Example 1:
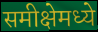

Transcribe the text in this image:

समीक्षेमध्ये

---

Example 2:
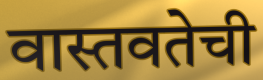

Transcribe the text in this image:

वास्तवतेची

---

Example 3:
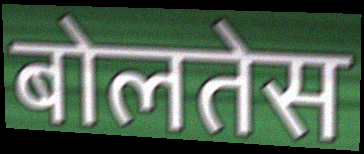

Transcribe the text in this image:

बोलतेस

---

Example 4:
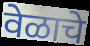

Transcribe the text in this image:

वेळाचे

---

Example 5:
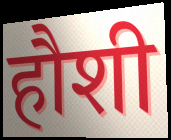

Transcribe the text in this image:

हौशी